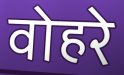
वोहरे